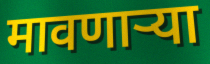
मावणाऱ्या